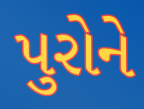
પુરોને